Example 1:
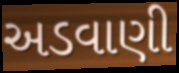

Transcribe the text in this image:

અડવાણી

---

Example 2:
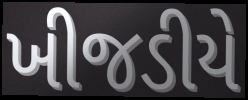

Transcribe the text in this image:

ખીજડીયે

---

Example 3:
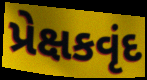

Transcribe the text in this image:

પ્રેક્ષકવૃંદ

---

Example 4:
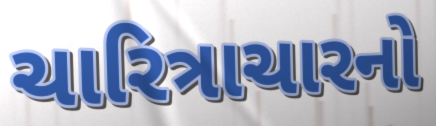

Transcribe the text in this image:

ચારિત્રાચારનો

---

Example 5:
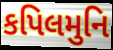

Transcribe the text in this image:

કપિલમુનિ